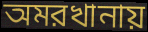
অমরখানায়